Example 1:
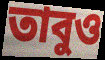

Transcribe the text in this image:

তাবুও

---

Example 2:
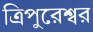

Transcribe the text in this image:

ত্রিপুরেশ্বর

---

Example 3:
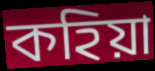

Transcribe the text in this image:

কহিয়া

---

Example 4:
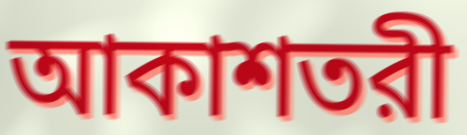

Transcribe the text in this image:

আকাশতরী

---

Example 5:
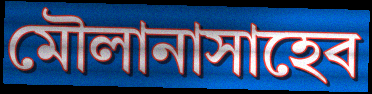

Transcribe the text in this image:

মৌলানাসাহেব